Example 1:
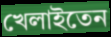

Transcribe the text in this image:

খেলাইতেন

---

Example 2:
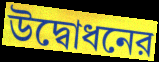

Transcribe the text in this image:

উদ্বোধনের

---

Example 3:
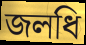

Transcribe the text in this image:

জলধি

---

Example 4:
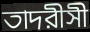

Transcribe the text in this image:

তাদরীসী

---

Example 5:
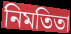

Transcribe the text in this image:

নিমতিতা